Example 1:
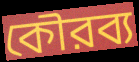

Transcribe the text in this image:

কৌরব্য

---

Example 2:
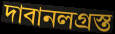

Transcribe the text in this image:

দাবানলগ্রস্ত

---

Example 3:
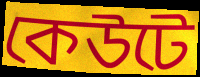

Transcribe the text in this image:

কেউটে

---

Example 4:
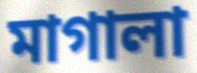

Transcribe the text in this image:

মাগালা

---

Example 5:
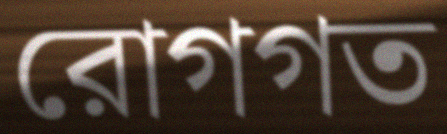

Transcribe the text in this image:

রোগগত